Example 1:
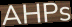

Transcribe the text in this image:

AHPs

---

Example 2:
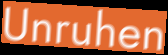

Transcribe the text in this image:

Unruhen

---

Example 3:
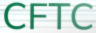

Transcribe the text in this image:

CFTC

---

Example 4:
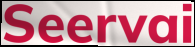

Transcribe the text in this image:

Seervai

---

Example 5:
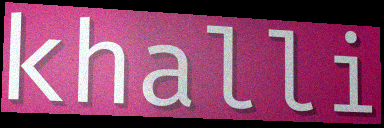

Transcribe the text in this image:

khalli